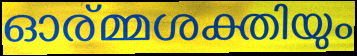
ഓര്മ്മശക്തിയും